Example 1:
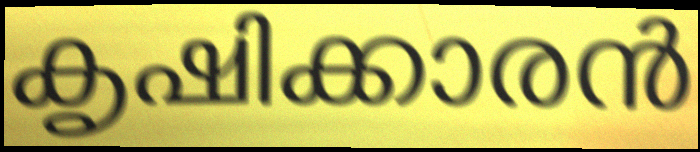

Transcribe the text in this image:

കൃഷിക്കാരൻ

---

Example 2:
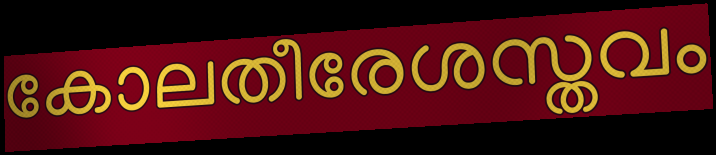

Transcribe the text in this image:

കോലതീരേശസ്തവം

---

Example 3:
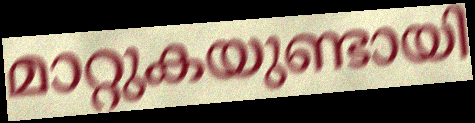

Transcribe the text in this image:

മാറ്റുകയുണ്ടായി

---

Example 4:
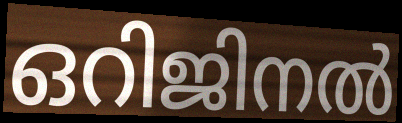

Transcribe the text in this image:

ഒറിജിനൽ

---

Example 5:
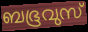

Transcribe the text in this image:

ബഭൂവുസ്